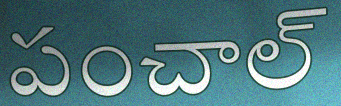
పంచాల్